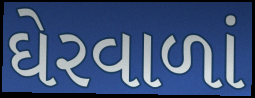
ઘેરવાળાં